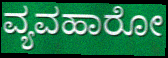
ವ್ಯವಹಾರೋ